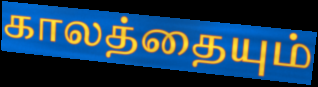
காலத்தையும்